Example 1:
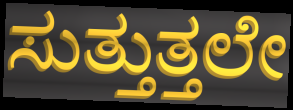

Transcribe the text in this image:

ಸುತ್ತುತ್ತಲೇ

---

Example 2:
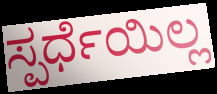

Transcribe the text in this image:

ಸ್ಪರ್ಧೆಯಿಲ್ಲ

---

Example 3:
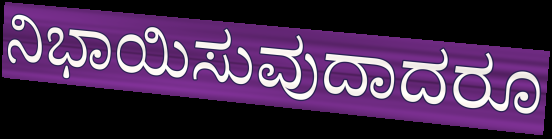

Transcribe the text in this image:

ನಿಭಾಯಿಸುವುದಾದರೂ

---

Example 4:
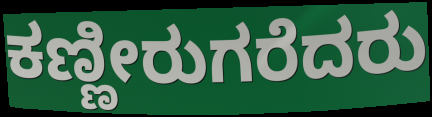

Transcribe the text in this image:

ಕಣ್ಣೀರುಗರೆದರು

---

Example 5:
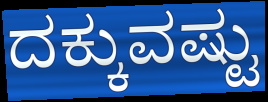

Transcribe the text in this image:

ದಕ್ಕುವಷ್ಟು